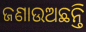
ଜଣାଉଅଛନ୍ତି